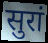
सुरां